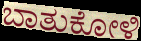
ಬಾತುಕೋಳಿ